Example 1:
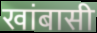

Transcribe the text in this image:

खांबासी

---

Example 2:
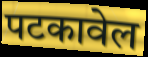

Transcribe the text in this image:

पटकावेल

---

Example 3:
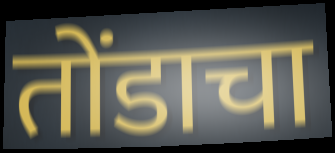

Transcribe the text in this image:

तोंडाचा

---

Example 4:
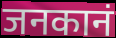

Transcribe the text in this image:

जनकानं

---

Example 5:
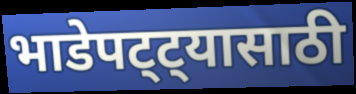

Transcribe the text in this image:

भाडेपट्ट्यासाठी